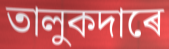
তালুকদাৰে